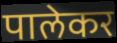
पालेकर